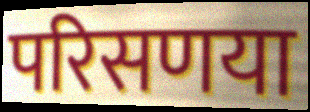
परिसणया